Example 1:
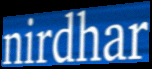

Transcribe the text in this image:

nirdhar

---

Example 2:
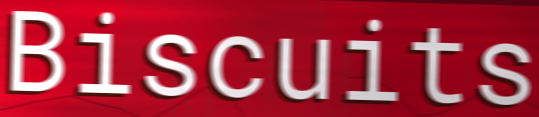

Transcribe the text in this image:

Biscuits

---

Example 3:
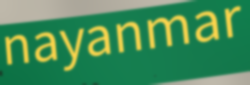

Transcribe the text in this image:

nayanmar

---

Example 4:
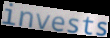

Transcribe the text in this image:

invests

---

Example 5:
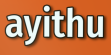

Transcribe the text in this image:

ayithu